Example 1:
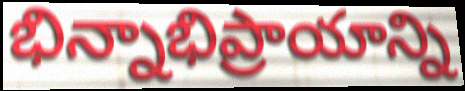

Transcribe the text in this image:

భిన్నాభిప్రాయాన్ని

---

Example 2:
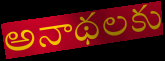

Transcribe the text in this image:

అనాథలకు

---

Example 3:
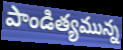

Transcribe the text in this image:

పాండిత్యమున్న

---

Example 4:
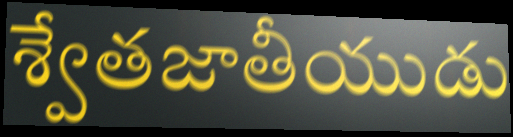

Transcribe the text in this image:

శ్వేతజాతీయుడు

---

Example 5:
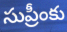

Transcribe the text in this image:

సుప్రీంకు